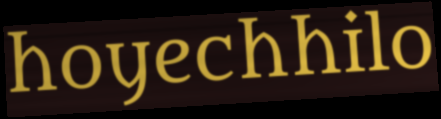
hoyechhilo